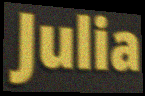
Julia